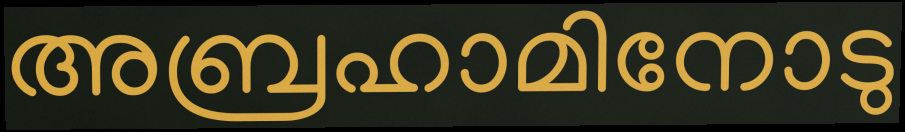
അബ്രഹാമിനോടു